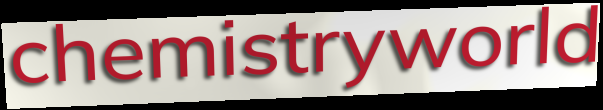
chemistryworld